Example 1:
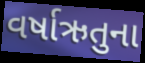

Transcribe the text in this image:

વર્ષાઋતુના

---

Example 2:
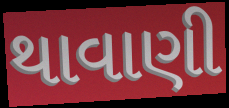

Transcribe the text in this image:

થાવાણી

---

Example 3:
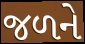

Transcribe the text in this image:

જળને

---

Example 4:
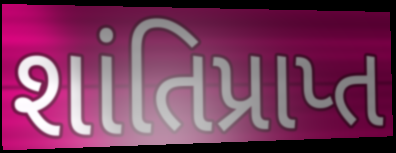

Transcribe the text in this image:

શાંતિપ્રાપ્ત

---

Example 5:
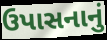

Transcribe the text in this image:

ઉપાસનાનું